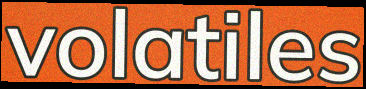
volatiles